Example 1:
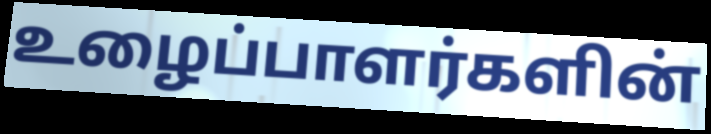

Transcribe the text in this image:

உழைப்பாளர்களின்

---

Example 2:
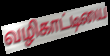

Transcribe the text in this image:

வழிகாட்டியை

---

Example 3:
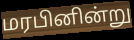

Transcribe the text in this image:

மரபினின்று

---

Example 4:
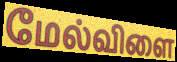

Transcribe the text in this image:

மேல்விளை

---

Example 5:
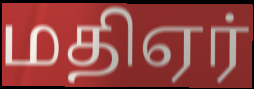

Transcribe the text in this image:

மதிஏர்